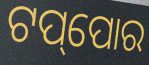
ଟପ୍‌ପୋର